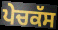
ਪੇਚਕੱਸ